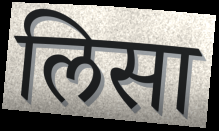
लिसा